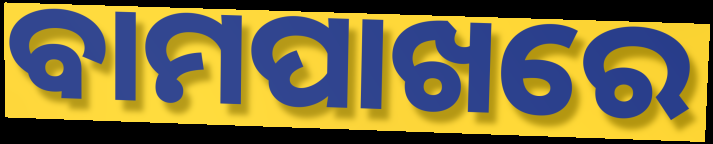
ବାମପାଖରେ